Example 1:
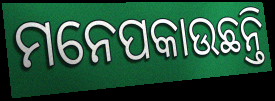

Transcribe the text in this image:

ମନେପକାଉଛନ୍ତି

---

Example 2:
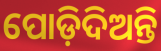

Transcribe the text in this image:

ପୋଡ଼ିଦିଅନ୍ତି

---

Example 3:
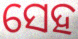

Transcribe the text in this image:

ସେହ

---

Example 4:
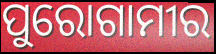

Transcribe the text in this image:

ପୁରୋଗାମୀର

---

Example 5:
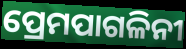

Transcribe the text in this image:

ପ୍ରେମପାଗଳିନୀ